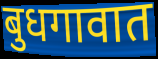
बुधगावात